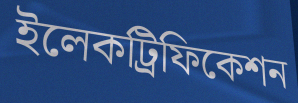
ইলেকট্রিফিকেশন